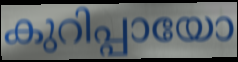
കുറിപ്പായോ